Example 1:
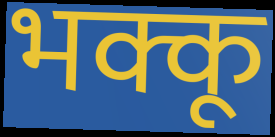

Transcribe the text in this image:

भक्कू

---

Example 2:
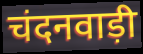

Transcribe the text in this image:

चंदनवाड़ी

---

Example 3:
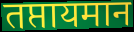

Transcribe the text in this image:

तप्तायमान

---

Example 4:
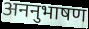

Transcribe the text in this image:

अननुभाषण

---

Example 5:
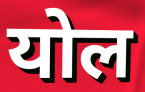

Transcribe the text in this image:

योल